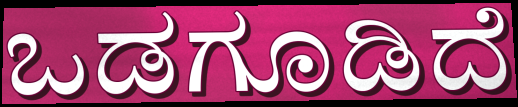
ಒಡಗೂಡಿದೆ